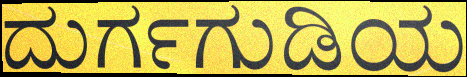
ದುರ್ಗಗುಡಿಯ